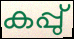
കപ്പു്